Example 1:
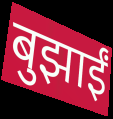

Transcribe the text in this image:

बुझाईं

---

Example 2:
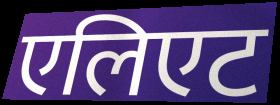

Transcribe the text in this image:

एलिएट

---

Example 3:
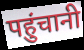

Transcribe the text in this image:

पहुंचानी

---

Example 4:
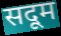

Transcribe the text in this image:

सदूम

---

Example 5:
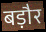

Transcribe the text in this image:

बड़ौर